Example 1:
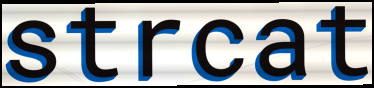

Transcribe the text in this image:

strcat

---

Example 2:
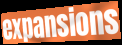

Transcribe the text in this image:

expansions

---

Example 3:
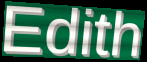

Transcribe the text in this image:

Edith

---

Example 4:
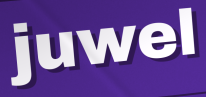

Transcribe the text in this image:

juwel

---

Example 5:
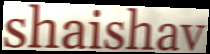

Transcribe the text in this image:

shaishav